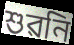
শুৱনি